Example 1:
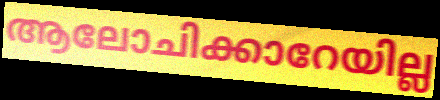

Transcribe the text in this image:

ആലോചിക്കാറേയില്ല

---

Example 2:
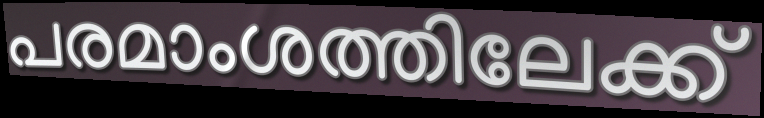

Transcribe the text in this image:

പരമാംശത്തിലേക്ക്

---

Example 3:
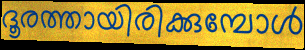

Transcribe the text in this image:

ദൂരത്തായിരിക്കുമ്പോൾ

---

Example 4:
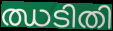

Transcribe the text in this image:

ഝടിതി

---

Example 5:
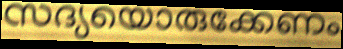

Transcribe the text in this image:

സദ്യയൊരുക്കേണം